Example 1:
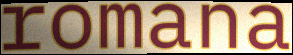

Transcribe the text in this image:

romana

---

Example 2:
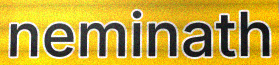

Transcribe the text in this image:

neminath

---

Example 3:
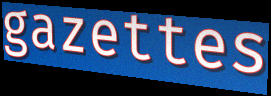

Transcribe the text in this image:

gazettes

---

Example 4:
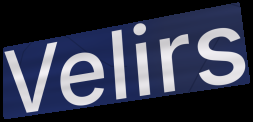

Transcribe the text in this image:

Velirs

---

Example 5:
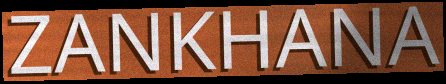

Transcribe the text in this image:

ZANKHANA